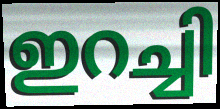
ഇറച്ചി